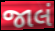
જાલં